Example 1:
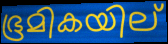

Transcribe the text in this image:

ഭൂമികയില്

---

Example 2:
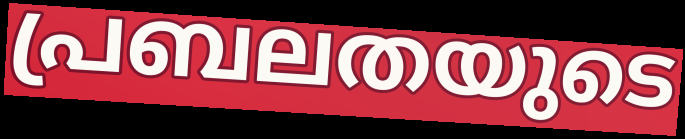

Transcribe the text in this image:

പ്രബലതയുടെ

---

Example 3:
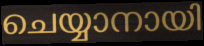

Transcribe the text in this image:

ചെയ്യാനായി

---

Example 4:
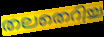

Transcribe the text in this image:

തലതെറിച്ച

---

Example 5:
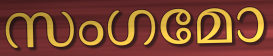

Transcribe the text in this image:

സംഗമോ